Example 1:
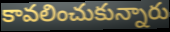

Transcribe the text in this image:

కావలించుకున్నారు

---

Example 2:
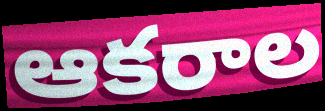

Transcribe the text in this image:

ఆకరాల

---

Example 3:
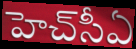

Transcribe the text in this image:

హెచ్‌సీఏ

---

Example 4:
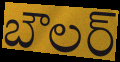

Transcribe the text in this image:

బౌలర్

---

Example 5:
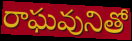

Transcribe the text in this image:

రాఘవునితో